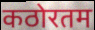
कठोरतम